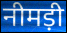
नीमड़ी